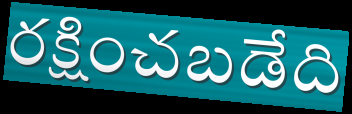
రక్షించబడేది